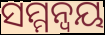
ସମ୍ମନ୍ୱୟ